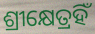
ଶ୍ରୀକ୍ଷେତ୍ରହିଁ